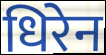
धिरेन